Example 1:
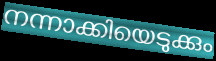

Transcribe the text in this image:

നന്നാക്കിയെടുക്കും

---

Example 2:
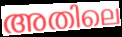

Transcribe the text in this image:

അതിലെ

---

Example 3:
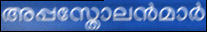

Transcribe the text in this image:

അപ്പസ്തോലൻമാർ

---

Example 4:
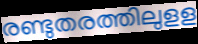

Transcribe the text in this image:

രണ്ടുതരത്തിലുളള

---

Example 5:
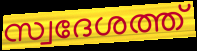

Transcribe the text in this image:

സ്വദേശത്ത്